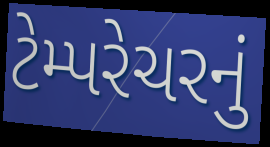
ટેમ્પરેચરનું